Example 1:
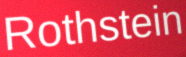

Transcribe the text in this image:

Rothstein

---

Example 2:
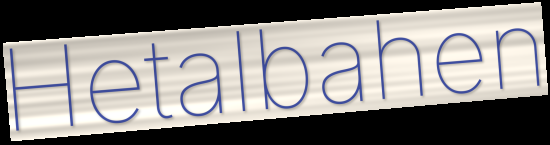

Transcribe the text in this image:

Hetalbahen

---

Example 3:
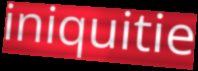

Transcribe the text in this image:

iniquitie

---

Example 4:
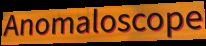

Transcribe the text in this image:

Anomaloscope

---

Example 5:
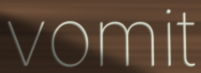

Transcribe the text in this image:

vomit